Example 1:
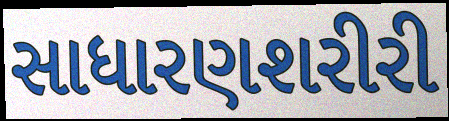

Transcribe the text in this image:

સાધારણશરીરી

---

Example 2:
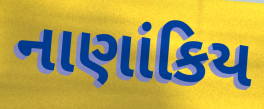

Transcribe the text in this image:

નાણાંકિય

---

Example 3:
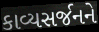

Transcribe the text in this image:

કાવ્યસર્જનને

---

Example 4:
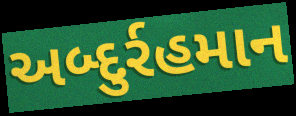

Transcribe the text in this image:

અબ્દુર્રહમાન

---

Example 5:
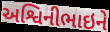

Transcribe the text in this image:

અશ્વિનીભાઇને